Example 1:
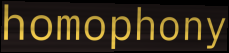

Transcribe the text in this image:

homophony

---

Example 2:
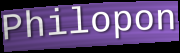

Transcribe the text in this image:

Philopon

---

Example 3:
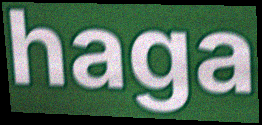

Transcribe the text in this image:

haga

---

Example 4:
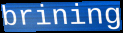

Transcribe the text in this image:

brining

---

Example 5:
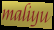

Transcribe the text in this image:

maliyu